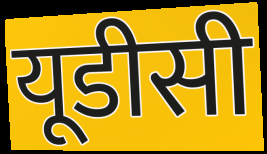
यूडीसी